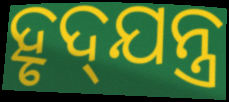
ହୃଦ୍‌ଯନ୍ତ୍ର